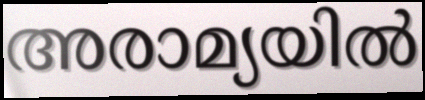
അരാമ്യയിൽ